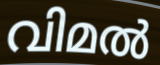
വിമൽ